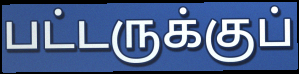
பட்டருக்குப்